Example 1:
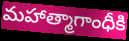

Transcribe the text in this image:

మహాత్మాగాంధీకి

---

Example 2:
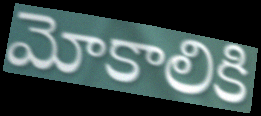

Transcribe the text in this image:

మోకాలికి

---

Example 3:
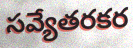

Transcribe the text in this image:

సవ్యేతరకర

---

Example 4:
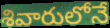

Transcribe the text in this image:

శివారులోనే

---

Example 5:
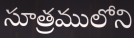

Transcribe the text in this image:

సూత్రములోని